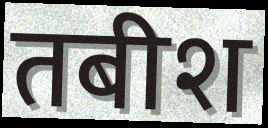
तबीश